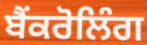
ਬੈਂਕਰੋਲਿੰਗ